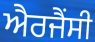
ਐਰਜੈਂਸੀ